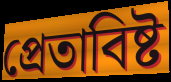
প্রেতাবিষ্ট